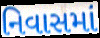
નિવાસમાં